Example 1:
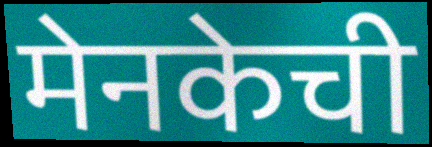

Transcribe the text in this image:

मेनकेची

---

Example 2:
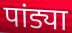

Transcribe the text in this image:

पांड्या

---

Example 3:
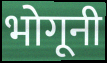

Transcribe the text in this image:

भोगूनी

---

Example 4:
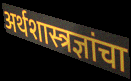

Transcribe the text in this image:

अर्थशास्त्रज्ञांचा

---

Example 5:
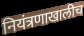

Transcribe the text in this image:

नियंत्रणाखालीच